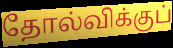
தோல்விக்குப்